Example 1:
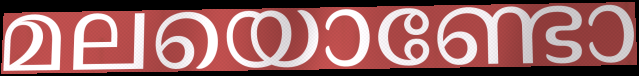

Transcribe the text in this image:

മലയൊണ്ടോ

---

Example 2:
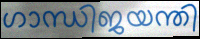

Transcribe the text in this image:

ഗാന്ധിജയന്തി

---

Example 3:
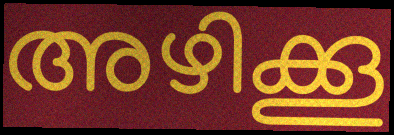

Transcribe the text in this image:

അഴിക്കൂ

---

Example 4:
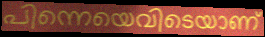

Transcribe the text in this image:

പിന്നെയെവിടെയാണ്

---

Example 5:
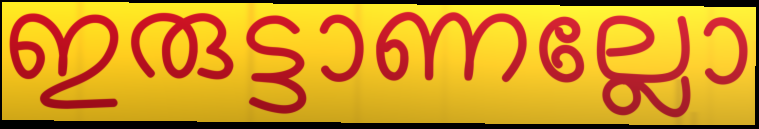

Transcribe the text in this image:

ഇരുട്ടാണല്ലോ